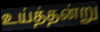
உய்த்தன்று